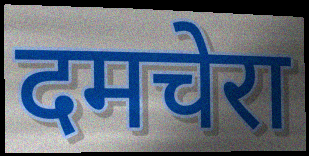
दमचेरा